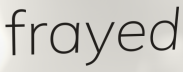
frayed